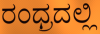
ರಂಧ್ರದಲ್ಲಿ